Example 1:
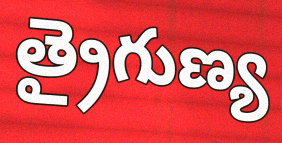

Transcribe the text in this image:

త్రైగుణ్య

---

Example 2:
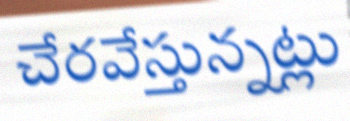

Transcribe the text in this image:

చేరవేస్తున్నట్లు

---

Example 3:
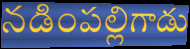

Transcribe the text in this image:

నడింపల్లిగాడు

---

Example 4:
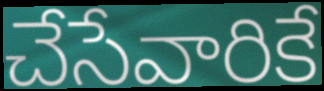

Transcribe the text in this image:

చేసేవారికే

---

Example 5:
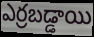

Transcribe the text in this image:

ఎర్రబడ్డాయి